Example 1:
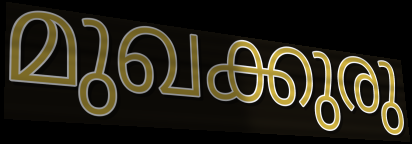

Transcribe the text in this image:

മുഖക്കുരു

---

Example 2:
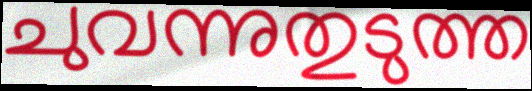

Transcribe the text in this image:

ചുവന്നുതുടുത്ത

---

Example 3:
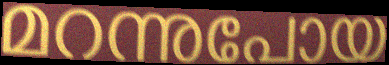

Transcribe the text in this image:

മറന്നുപോയ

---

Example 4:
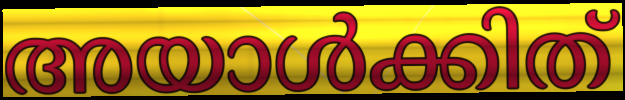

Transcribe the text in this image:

അയാൾക്കിത്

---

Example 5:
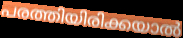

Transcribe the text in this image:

പരത്തിയിരിക്കയാൽ